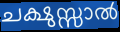
ചക്ഷുസ്സാൽ